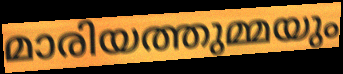
മാരിയത്തുമ്മയും